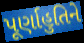
પૂર્ણાહુતિને